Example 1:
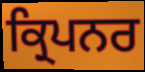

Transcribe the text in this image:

ਕ੍ਰਿਪਨਰ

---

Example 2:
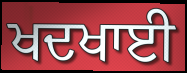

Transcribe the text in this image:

ਖਦਖਾਈ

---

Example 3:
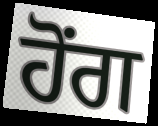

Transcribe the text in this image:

ਹੋਂਗ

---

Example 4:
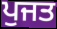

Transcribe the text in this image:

ਪੁਜਤ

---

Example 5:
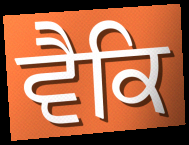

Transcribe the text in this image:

ਵੈਕਿ